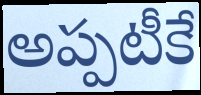
అప్పటీకే